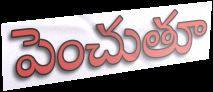
పెంచుతూ